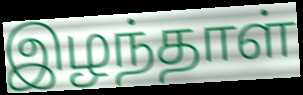
இழந்தாள்